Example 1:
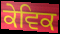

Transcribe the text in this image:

ਕੇਵਿਕ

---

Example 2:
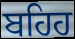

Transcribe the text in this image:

ਬਹਿਹ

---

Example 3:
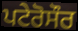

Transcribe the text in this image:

ਪਟੇਰੋਸੌਰ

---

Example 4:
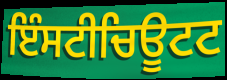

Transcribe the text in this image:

ਇੰਸਟੀਚਿਊਟਟ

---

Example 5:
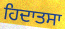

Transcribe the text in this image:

ਹਿਦਾਤਸਾ